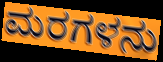
ಮರಗಳನು